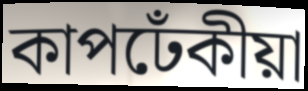
কাপঢেঁকীয়া